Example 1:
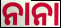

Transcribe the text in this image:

ନାନା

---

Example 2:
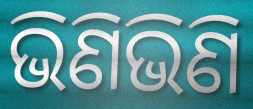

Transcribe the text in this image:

ଭିଣିଭିଣି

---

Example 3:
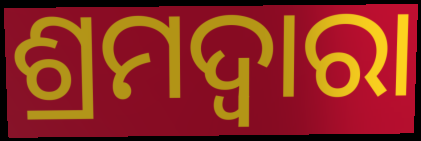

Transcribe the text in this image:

ଶ୍ରମଦ୍ୱାରା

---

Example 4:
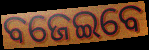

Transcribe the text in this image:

ବଜେଇବେ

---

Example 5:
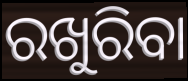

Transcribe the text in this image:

ରଖୁରିବା